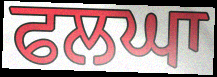
ਫਲਘਾ